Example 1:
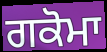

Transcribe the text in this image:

ਗਕੋਮਾ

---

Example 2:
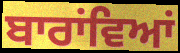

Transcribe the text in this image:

ਬਾਰਾਂਵਿਆਂ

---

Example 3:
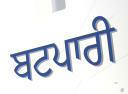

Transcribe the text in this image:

ਬਟਪਾਰੀ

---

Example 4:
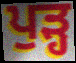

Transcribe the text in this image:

ਪੁੜ੍ਹ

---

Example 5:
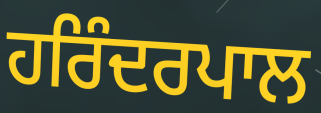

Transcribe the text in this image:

ਹਰਿੰਦਰਪਾਲ